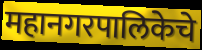
महानगरपालिकेचे